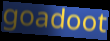
goadoot